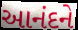
આનંદને